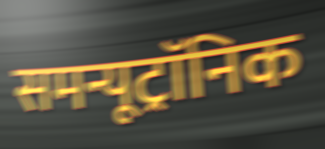
समन्यूट्रॉनिक